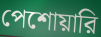
পেশোয়ারি